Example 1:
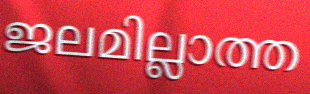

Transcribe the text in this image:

ജലമില്ലാത്ത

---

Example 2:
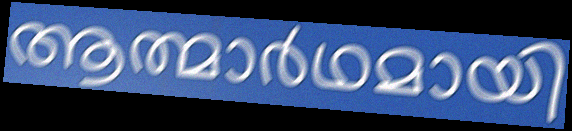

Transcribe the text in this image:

ആത്മാർഥമായി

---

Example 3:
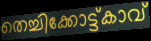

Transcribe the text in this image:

തെച്ചിക്കോട്ട്കാവ്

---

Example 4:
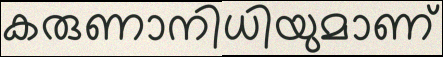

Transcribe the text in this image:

കരുണാനിധിയുമാണ്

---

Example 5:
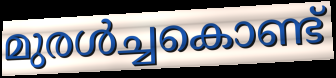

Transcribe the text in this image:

മുരൾച്ചകൊണ്ട്